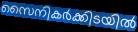
സൈനികർക്കിടയിൽ